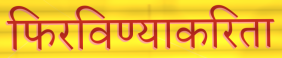
फिरविण्याकरिता